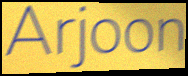
Arjoon